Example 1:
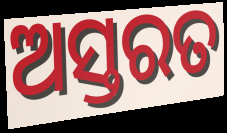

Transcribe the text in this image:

ଅସ୍ତରତ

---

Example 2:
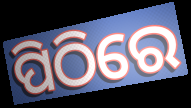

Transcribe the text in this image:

ପିଠିରେ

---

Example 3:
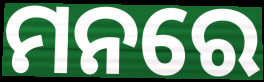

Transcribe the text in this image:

ମନରେ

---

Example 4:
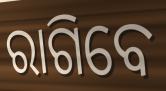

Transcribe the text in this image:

ରାଗିବେ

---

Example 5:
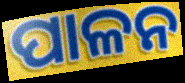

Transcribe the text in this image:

ପାଳନ